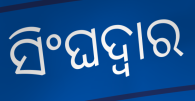
ସିଂଘଦ୍ୱାର